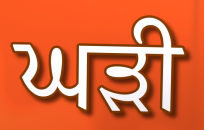
ਘਡ਼ੀ